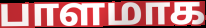
பாளமாக